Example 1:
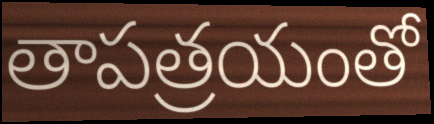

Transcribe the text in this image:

తాపత్రయంతో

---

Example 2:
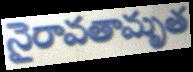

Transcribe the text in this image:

నైరావతామృత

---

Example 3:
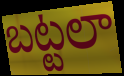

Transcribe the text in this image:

బట్టలా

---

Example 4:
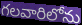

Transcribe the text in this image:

గలవారిలోను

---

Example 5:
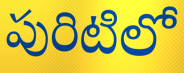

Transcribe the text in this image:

పురిటిలో